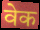
वेक